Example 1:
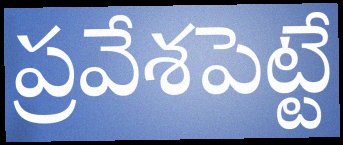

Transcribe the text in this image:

ప్రవేశపెట్టే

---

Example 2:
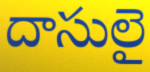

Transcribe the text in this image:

దాసులై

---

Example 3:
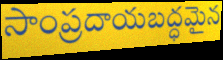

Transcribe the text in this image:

సాంప్రదాయబద్ధమైన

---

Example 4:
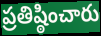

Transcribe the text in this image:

ప్రతిష్ఠించారు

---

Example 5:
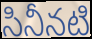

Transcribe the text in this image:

సినీనటి